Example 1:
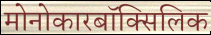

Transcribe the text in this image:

मोनोकारबॉक्सिलिक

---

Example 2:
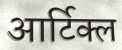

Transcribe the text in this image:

आर्टिक्ल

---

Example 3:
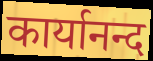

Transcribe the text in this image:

कार्यानन्द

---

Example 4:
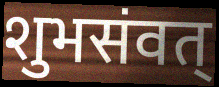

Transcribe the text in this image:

शुभसंवत्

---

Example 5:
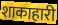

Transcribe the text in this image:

शाकाहारी